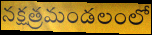
నక్షత్రమండలంలో